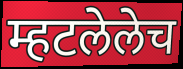
म्हटलेलेच